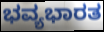
ಭವ್ಯಭಾರತ